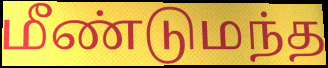
மீண்டுமந்த